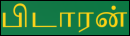
பிடாரன்